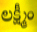
లక్ష్మీం